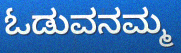
ಓಡುವನಮ್ಮ